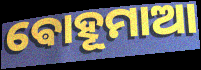
ଵୋହୂମାଆ